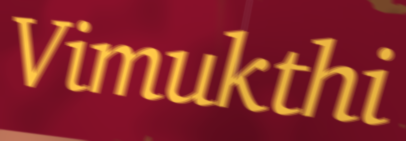
Vimukthi